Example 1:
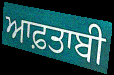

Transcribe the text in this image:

ਆਫ਼ਤਾਬੀ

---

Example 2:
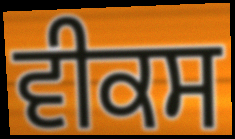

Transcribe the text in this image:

ਵੀਕਸ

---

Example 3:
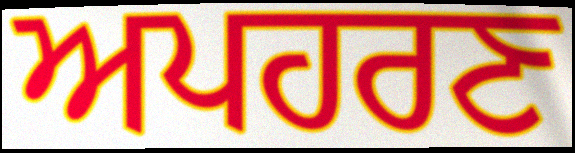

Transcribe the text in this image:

ਅਪਹਰਣ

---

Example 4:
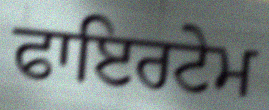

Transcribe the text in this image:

ਫਾਇਰਟੇਮ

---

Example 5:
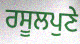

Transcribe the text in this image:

ਰਸੂਲਪੁਣੇ